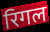
रिगल